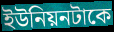
ইউনিয়নটাকে